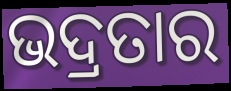
ଭଦ୍ରତାର